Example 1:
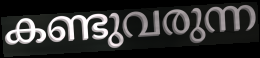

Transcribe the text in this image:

കണ്ടുവരുന്ന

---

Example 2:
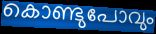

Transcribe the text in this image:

കൊണ്ടുപോവും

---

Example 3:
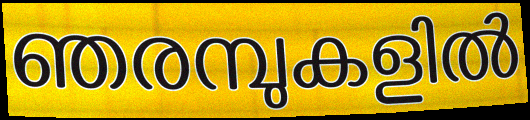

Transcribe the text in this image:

ഞരമ്പുകളിൽ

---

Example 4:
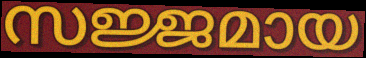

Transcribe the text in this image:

സജ്ജമായ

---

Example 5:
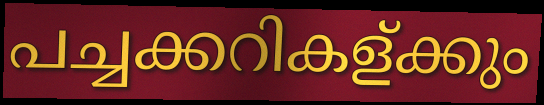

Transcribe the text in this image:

പച്ചക്കറികള്ക്കും